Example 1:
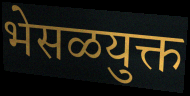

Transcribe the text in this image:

भेसळयुक्त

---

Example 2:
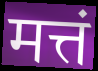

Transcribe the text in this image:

मत्तं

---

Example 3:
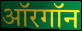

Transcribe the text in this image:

ऑरगॉन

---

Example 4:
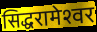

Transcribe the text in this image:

सिद्धरामेश्वर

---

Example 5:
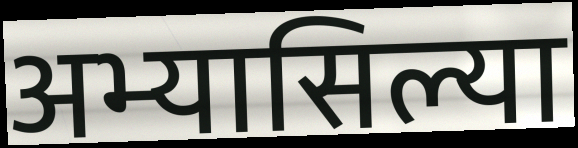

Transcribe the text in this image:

अभ्यासिल्या